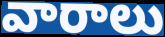
వారాలు